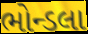
ભોન્ડલા